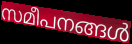
സമീപനങ്ങൾ